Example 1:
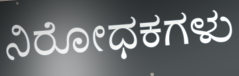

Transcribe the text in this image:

ನಿರೋಧಕಗಳು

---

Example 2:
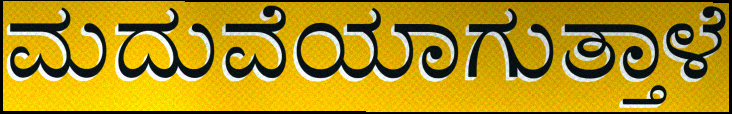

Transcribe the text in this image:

ಮದುವೆಯಾಗುತ್ತಾಳೆ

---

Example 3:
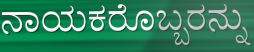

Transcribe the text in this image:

ನಾಯಕರೊಬ್ಬರನ್ನು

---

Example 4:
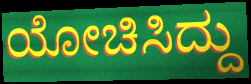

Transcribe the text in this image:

ಯೋಚಿಸಿದ್ದು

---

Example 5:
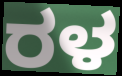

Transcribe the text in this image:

ರಳ